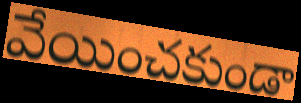
వేయించకుండా